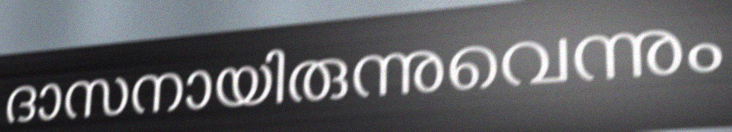
ദാസനായിരുന്നുവെന്നും